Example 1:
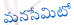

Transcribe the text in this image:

మనసేమిటో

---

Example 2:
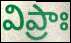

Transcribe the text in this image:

విప్రాః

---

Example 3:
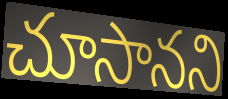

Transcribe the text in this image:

చూసానని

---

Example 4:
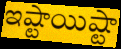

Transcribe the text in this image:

ఇష్టాయిష్టా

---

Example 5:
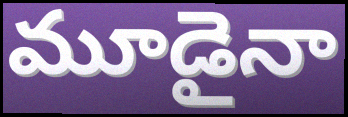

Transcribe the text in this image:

మూడైనా